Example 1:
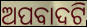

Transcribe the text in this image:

ଅପବାଦଟି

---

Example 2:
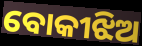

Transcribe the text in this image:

ବୋକୀଝିଅ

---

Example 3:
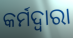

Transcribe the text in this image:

କର୍ମଦ୍ବାରା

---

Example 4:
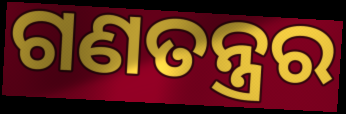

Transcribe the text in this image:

ଗଣତନ୍ତ୍ରର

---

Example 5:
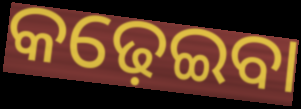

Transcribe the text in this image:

କଢ଼େଇବା